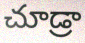
చూడ్రా